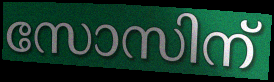
സോസിന്